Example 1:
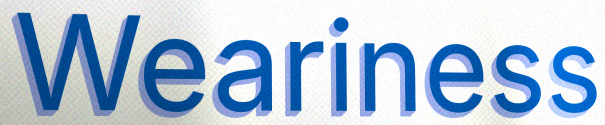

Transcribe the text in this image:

Weariness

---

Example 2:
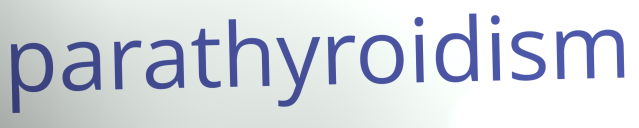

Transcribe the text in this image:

parathyroidism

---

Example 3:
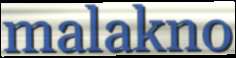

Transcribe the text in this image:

malakno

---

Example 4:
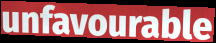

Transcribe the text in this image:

unfavourable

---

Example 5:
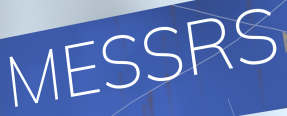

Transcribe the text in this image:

MESSRS